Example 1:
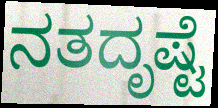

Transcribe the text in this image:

ನತದೃಷ್ಟೆ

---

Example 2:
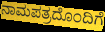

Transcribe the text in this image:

ನಾಮಪತ್ರದೊಂದಿಗೆ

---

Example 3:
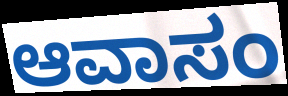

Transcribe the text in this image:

ಆವಾಸಂ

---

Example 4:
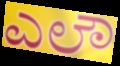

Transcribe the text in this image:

ಎಲೌ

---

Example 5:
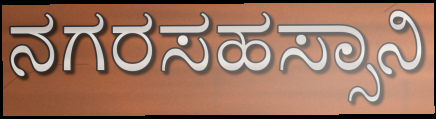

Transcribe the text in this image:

ನಗರಸಹಸ್ಸಾನಿ